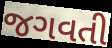
જગવતી